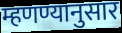
म्हणण्यानुसार